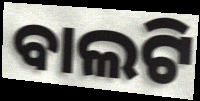
ବାଲଟି